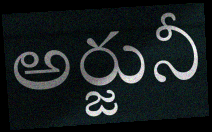
అర్జునీ